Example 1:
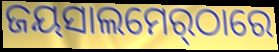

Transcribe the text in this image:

ଜୟସାଲମେର୍‌ଠାରେ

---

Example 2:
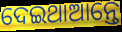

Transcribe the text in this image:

ଦେଇଥାଆନ୍ତେ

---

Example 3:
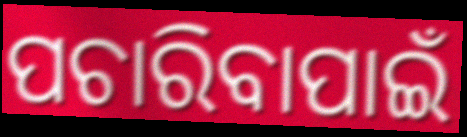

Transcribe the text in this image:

ପଚାରିବାପାଇଁ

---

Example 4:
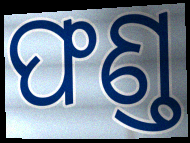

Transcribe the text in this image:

ଫଣ୍ଡ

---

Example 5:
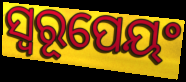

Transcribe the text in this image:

ସ୍ୱରୂପେୟଂ